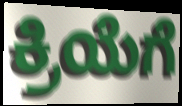
ಕ್ರಿಯೆಗೆ